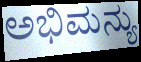
ಅಭಿಮನ್ಯು